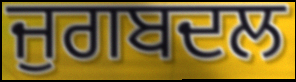
ਜੁਗਬਦਲ